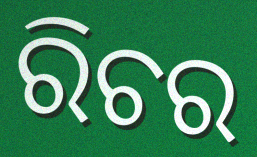
ରିଚର